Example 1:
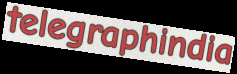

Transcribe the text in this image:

telegraphindia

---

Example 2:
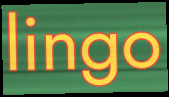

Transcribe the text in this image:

lingo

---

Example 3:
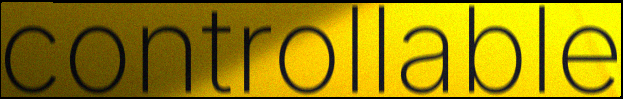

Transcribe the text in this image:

controllable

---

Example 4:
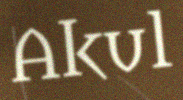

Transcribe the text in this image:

Akul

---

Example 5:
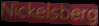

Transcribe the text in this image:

Nickelsberg